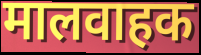
मालवाहक